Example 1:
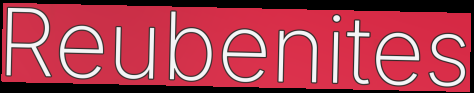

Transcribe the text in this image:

Reubenites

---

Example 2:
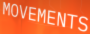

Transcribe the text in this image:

MOVEMENTS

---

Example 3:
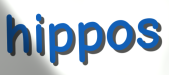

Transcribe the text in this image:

hippos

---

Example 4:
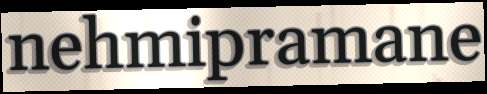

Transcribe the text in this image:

nehmipramane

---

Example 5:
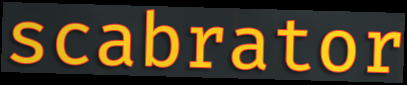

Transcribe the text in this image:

scabrator